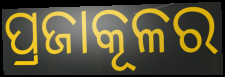
ପ୍ରଜାକୂଳର